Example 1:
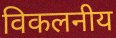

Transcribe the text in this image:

विकलनीय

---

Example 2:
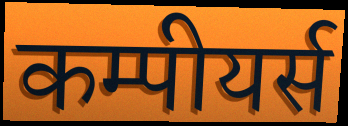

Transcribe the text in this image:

कम्पीयर्स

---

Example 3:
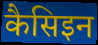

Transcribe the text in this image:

कैसिइन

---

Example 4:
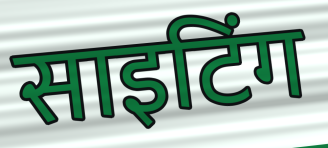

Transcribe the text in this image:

साइटिंग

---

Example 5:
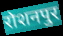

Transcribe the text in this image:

रोशनपुर